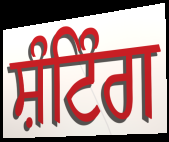
ਸ਼ੰਟਿੰਗ